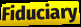
Fiduciary